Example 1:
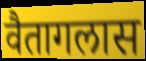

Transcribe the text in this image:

वैतागलास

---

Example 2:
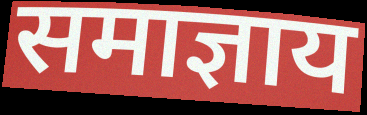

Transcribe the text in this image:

समाज्ञाय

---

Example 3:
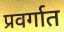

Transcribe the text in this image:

प्रवर्गात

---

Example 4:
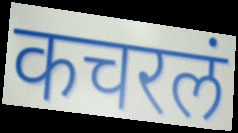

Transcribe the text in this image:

कचरलं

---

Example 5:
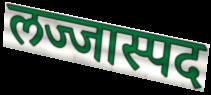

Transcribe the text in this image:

लज्जास्पद